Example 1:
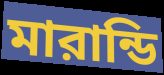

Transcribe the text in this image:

মারান্ডি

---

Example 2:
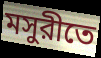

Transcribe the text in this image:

মসুরীতে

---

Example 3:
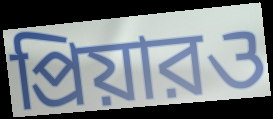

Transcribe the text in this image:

প্রিয়ারও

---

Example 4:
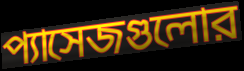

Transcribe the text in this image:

প্যাসেজগুলোর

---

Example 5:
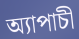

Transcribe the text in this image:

অ্যাপাচী